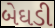
બેઘડી